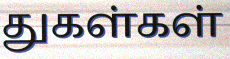
துகள்கள்